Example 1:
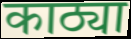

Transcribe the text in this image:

काठ्या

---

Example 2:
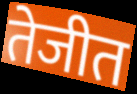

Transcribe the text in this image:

तेजीत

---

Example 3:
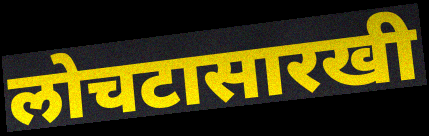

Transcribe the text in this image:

लोचटासारखी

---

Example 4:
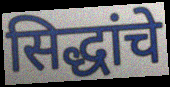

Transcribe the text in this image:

सिद्धांचे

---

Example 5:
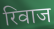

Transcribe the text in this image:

रिवाज